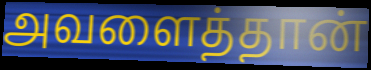
அவளைத்தான்